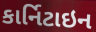
કાર્નિટાઇન